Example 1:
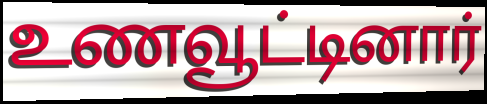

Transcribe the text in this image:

உணவூட்டினார்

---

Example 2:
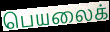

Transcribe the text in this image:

பெயலைக்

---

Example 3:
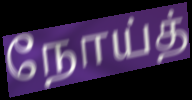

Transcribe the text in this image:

நோய்த்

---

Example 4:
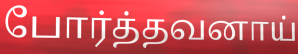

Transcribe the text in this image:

போர்த்தவனாய்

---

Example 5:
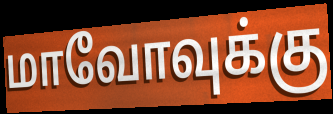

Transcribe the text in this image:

மாவோவுக்கு